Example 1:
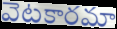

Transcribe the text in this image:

వెటకారమా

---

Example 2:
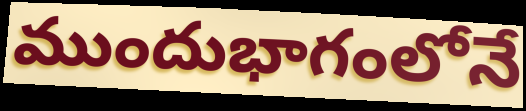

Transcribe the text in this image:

ముందుభాగంలోనే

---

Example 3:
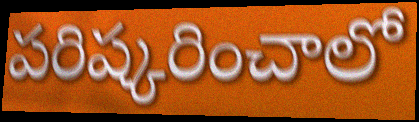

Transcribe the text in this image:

పరిష్కరించాలో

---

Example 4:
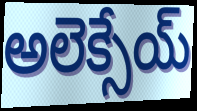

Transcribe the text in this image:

అలెక్సేయ్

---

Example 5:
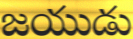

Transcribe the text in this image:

జయుడు